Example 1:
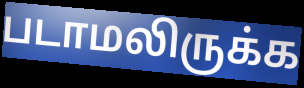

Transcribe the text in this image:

படாமலிருக்க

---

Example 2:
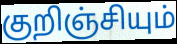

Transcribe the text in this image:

குறிஞ்சியும்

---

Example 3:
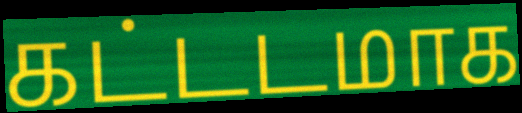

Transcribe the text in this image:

கட்டடமாக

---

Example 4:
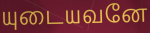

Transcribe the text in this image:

யுடையவனே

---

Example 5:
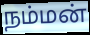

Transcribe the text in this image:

நம்மன்